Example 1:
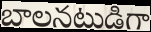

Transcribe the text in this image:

బాలనటుడిగా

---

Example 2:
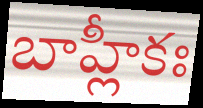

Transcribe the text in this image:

బాహ్లీకః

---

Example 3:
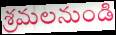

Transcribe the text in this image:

శ్రమలనుండి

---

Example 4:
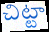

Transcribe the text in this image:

చిట్టా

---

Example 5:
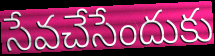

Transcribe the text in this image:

సేవచేసేందుకు